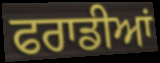
ਫਰਾਡੀਆਂ